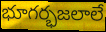
భూగర్భజలాలే